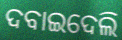
ଦବାଇଦେଲି